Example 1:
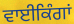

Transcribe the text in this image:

ਵਾਈਕਿੰਗਾਂ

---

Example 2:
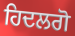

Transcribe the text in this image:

ਹਿਦਲਗੋ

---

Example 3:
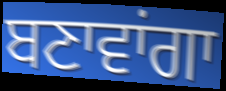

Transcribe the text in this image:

ਬਣਾਵਾਂਗਾ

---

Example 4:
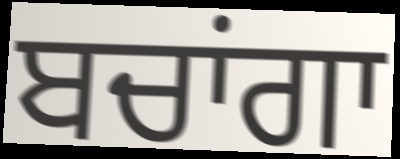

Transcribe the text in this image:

ਬਚਾਂਗਾ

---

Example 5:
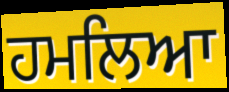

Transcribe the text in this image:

ਹਮਲਿਆ